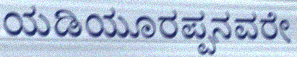
ಯಡಿಯೂರಪ್ಪನವರೇ